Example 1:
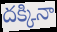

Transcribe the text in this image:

దక్కినా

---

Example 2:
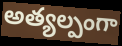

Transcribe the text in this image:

అత్యల్పంగా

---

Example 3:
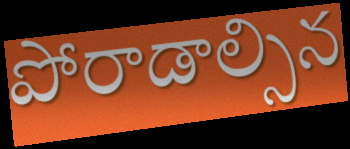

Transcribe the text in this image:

పోరాడాల్సిన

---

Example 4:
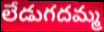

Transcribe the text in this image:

లేడుగదమ్మ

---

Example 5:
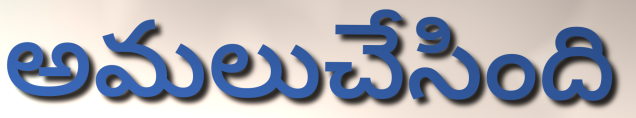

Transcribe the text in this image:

అమలుచేసింది